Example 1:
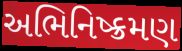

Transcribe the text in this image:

અભિનિષ્ક્રમણ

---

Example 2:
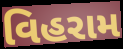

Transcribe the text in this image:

વિહરામ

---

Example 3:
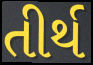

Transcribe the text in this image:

તીર્થ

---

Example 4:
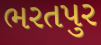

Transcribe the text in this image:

ભરતપુર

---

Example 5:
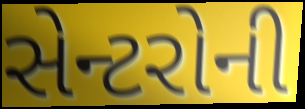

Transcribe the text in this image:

સેન્ટરોની